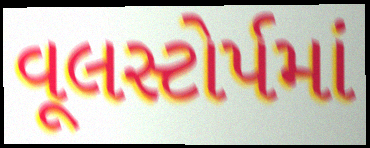
વૂલસ્ટોર્પમાં